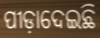
ପୀଡ଼ାଦେଇଛି